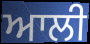
ਆਲੀ